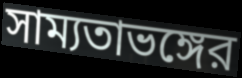
সাম্যতাভঙ্গের